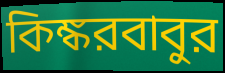
কিঙ্করবাবুর